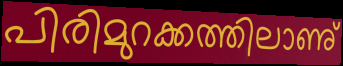
പിരിമുറക്കത്തിലാണു്